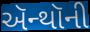
ઍન્થૉની